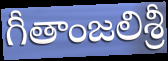
గీతాంజలిశ్రీ